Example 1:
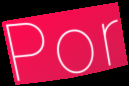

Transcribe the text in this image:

Por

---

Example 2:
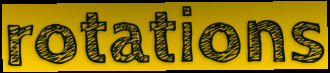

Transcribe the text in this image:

rotations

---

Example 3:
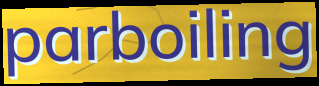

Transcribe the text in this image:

parboiling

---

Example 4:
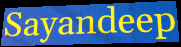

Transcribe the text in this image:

Sayandeep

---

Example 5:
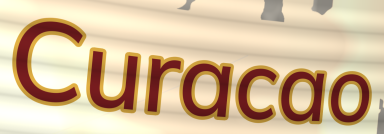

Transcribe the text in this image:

Curacao